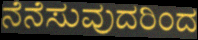
ನೆನೆಸುವುದರಿಂದ